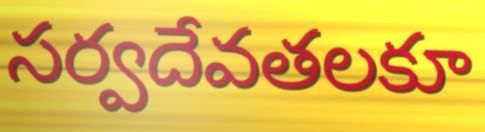
సర్వదేవతలకూ